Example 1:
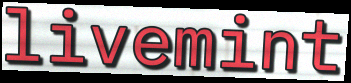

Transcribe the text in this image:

livemint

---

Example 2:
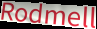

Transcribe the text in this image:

Rodmell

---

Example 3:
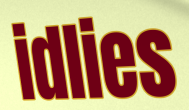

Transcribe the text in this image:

idlies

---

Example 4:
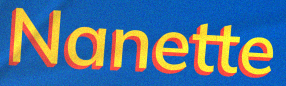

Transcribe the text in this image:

Nanette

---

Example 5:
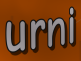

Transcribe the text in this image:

urni